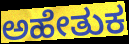
ಅಹೇತುಕ